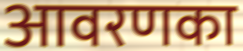
आवरणका